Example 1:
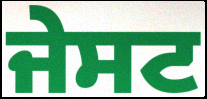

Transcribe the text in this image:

ਜੇਸਟ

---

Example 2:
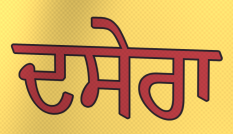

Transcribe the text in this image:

ਦਸੇਰਾ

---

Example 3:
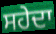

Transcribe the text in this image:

ਸਹੇਦਾ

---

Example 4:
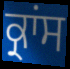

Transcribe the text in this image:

ਕ੍ਰਾਂਸ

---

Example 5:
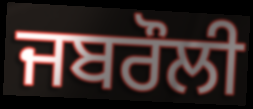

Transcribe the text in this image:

ਜਬਰੌਲੀ